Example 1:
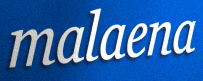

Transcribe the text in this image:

malaena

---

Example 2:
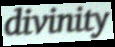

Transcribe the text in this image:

divinity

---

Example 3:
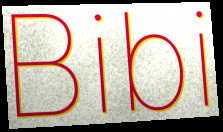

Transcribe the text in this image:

Bibi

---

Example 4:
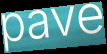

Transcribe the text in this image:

pave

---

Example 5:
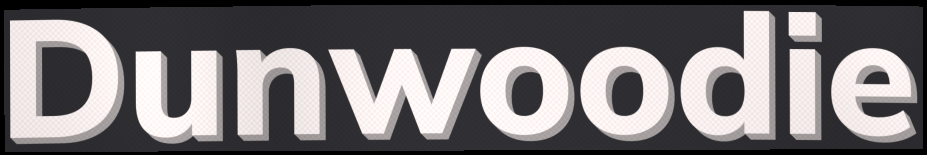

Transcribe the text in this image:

Dunwoodie